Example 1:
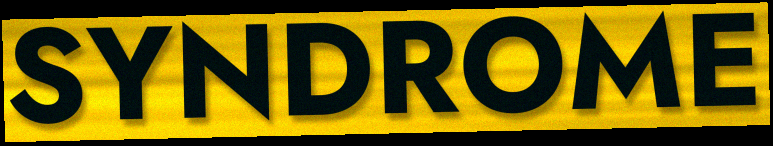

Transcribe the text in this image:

SYNDROME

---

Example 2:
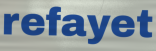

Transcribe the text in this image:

refayet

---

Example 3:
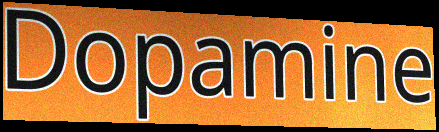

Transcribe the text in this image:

Dopamine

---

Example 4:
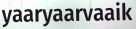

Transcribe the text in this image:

yaaryaarvaaik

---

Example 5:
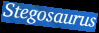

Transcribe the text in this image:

Stegosaurus